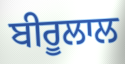
ਬੀਰੂਲਾਲ